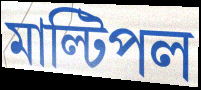
মাল্টিপল